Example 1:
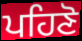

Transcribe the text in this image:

ਪਹਿਣੋ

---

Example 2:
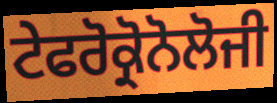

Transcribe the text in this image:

ਟੇਫਰੋਕ੍ਰੋਨੋਲੋਜੀ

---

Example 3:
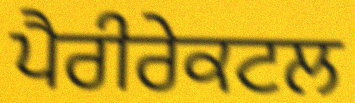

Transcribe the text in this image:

ਪੈਰੀਰੇਕਟਲ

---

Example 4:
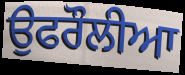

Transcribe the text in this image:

ਉਫਰੌਲੀਆ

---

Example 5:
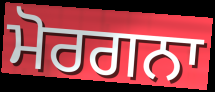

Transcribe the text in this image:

ਮੋਰਗਨਾ